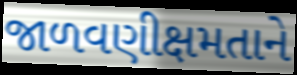
જાળવણીક્ષમતાને